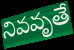
నివవృతే